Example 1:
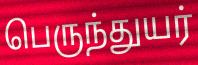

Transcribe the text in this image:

பெருந்துயர்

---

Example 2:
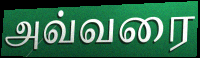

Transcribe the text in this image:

அவ்வரை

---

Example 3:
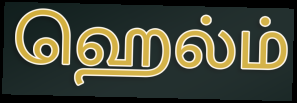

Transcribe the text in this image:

ஹெல்ம்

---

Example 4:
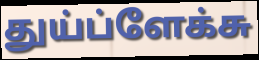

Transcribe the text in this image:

துய்ப்ளேக்சு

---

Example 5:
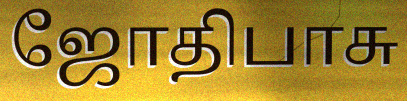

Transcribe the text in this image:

ஜோதிபாசு